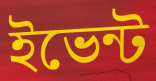
ইভেন্ট